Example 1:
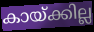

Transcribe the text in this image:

കായ്ക്കില്ല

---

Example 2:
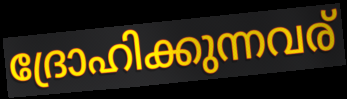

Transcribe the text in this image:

ദ്രോഹിക്കുന്നവര്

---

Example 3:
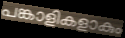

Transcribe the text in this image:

പങ്കാളികളാകും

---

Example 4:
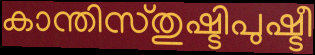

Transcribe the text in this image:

കാന്തിസ്തുഷ്ടിപുഷ്ടീ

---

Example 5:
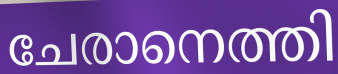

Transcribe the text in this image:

ചേരാനെത്തി